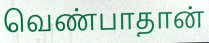
வெண்பாதான்